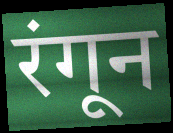
रंगून